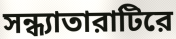
সন্ধ্যাতারাটিরে